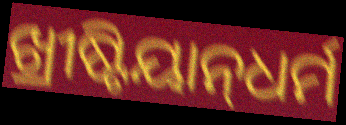
ଖ୍ରୀଷ୍ଟିୟାନ୍‌ଧର୍ମ